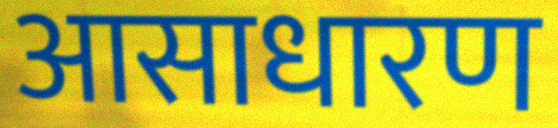
आसाधारण